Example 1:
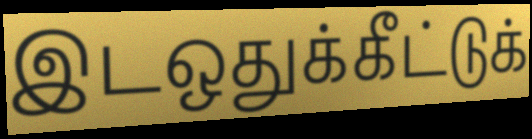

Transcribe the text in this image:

இடஒதுக்கீட்டுக்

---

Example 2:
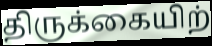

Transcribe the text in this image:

திருக்கையிற்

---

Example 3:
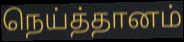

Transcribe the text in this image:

நெய்த்தானம்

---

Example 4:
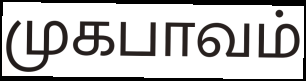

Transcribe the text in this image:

முகபாவம்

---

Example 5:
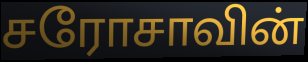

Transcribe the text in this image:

சரோசாவின்